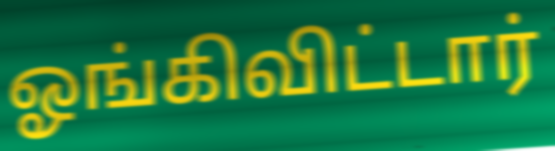
ஓங்கிவிட்டார்